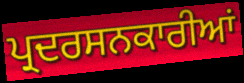
ਪ੍ਰਦਰਸਨਕਾਰੀਆਂ